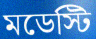
মডেস্টি